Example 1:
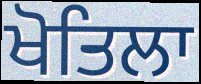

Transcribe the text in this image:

ਖੋਤਿਲਾ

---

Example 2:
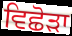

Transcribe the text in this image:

ਵਿਛੋੜਾ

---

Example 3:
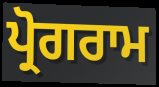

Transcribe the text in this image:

ਪ੍ਰੋਗਰਾਮ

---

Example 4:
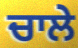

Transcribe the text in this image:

ਚਾਲੇ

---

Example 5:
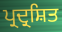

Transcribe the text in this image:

ਪ੍ਰਦ੍ਰਸ਼ਿਤ